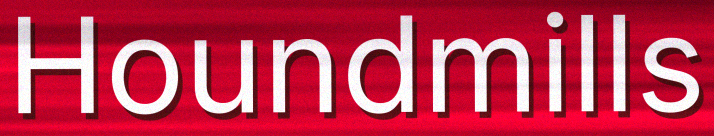
Houndmills